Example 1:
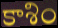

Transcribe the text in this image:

కాశిం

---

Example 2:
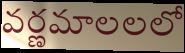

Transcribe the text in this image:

వర్ణమాలలలో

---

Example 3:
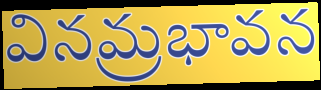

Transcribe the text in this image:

వినమ్రభావన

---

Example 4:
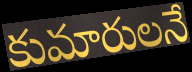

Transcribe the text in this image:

కుమారులనే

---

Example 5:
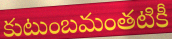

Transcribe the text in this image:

కుటుంబమంతటికీ